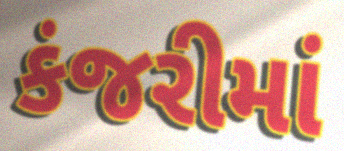
કંજરીમાં